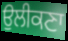
ਉਲੀਕਣਾ